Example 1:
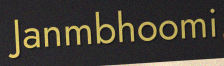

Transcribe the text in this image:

Janmbhoomi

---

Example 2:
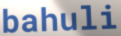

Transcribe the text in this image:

bahuli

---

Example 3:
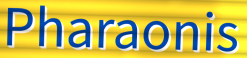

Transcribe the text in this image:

Pharaonis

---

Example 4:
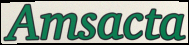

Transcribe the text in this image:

Amsacta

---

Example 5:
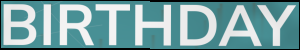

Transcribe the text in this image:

BIRTHDAY